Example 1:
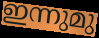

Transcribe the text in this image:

ഇന്നുമു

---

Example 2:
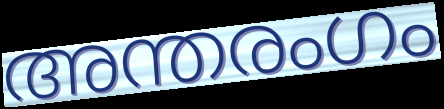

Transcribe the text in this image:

അന്തരംഗം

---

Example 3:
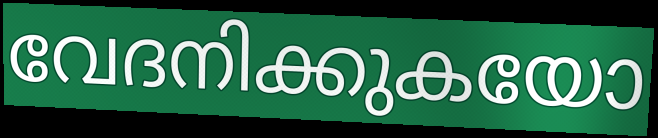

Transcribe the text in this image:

വേദനിക്കുകയോ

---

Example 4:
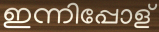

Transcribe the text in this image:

ഇന്നിപ്പോള്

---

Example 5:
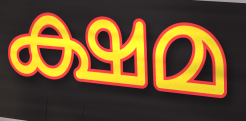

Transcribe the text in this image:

ക്ഷമ